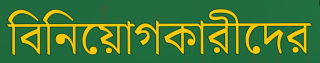
বিনিয়োগকারীদের